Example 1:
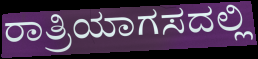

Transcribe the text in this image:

ರಾತ್ರಿಯಾಗಸದಲ್ಲಿ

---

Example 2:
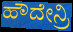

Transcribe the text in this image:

ಹೌದೇನ್ರಿ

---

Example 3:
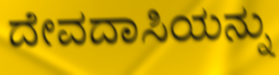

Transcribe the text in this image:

ದೇವದಾಸಿಯನ್ನು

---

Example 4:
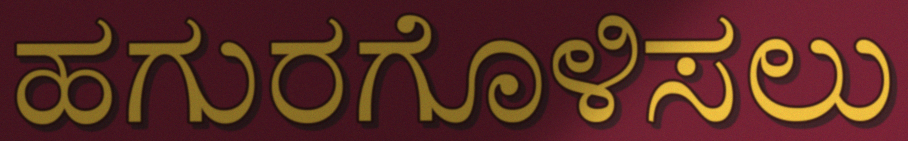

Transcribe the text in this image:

ಹಗುರಗೊಳಿಸಲು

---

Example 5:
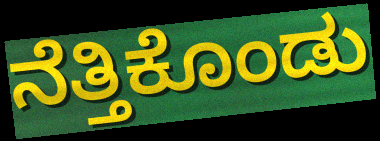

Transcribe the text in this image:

ನೆತ್ತಿಕೊಂಡು